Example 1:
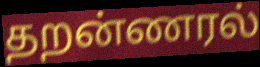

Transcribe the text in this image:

தறன்ணரல்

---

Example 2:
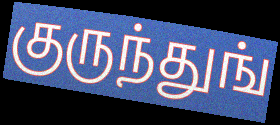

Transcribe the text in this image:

குருந்துங்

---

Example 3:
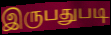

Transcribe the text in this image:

இருபதுபடி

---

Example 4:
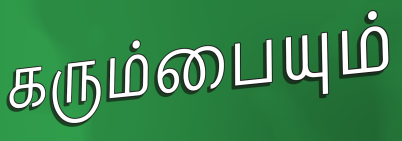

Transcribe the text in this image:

கரும்பையும்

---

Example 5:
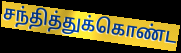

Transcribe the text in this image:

சந்தித்துக்கொண்ட